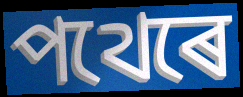
পথেৰে